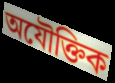
অযৌক্তিক